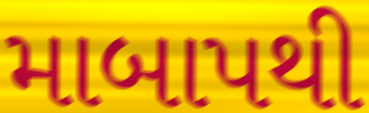
માબાપથી